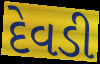
દેવડી